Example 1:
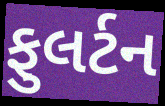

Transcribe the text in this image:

ફુલર્ટન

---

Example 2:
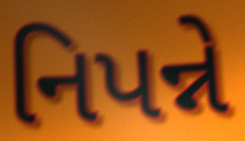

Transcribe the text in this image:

નિપન્ને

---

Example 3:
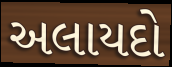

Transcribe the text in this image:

અલાયદો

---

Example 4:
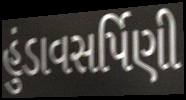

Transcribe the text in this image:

હુંડાવસર્પિણી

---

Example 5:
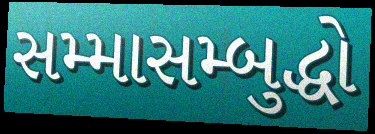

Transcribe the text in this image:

સમ્માસમ્બુદ્ધો